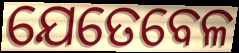
ଯେତେବେଳ